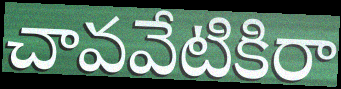
చావవేటికిరా